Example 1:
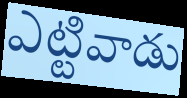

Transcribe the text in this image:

ఎట్టివాడు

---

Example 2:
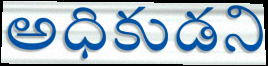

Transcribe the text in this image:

అధికుడని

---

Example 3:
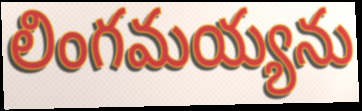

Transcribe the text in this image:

లింగమయ్యను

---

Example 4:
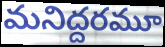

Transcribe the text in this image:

మనిద్దరమూ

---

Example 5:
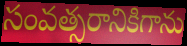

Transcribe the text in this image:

సంవత్సరానికిగాను